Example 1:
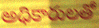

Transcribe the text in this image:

అధికారులతో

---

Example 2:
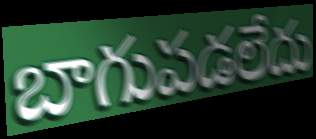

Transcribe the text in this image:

బాగుపడలేదు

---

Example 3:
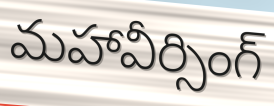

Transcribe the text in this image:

మహావీర్సింగ్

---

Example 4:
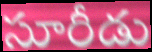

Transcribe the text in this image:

సూరీడు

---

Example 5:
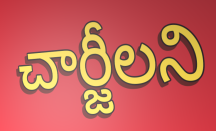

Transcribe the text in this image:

చార్జీలని